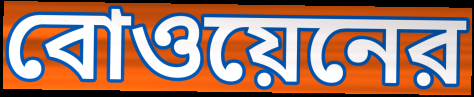
বোওয়েনের